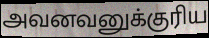
அவனவனுக்குரிய